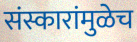
संस्कारांमुळेच